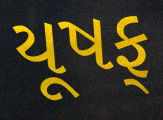
યૂષફ્